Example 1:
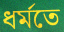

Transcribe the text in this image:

ধর্মতে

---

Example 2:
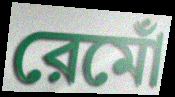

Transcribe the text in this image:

রেমোঁ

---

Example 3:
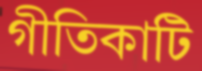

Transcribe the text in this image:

গীতিকাটি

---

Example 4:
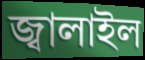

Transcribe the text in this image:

জ্বালাইল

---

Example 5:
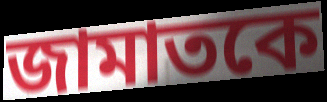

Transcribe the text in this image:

জামাতকে